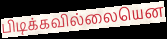
பிடிக்கவில்லையென